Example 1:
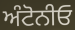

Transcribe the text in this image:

ਅੰਟੋਨੀਓ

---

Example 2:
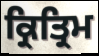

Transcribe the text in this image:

ਕ੍ਰਿਤ੍ਰਿਮ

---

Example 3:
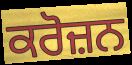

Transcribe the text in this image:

ਕਰੋਜ਼ਨ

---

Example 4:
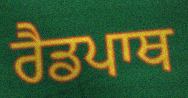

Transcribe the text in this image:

ਰੈਡਪਾਥ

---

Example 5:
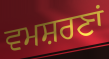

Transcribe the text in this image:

ਵਮਸ਼ਰਣਾਂ